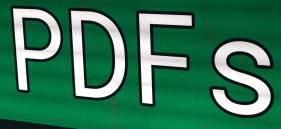
PDFs